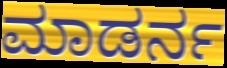
ಮಾಡರ್ನ